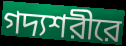
গদ্যশরীরে